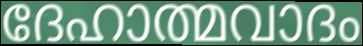
ദേഹാത്മവാദം